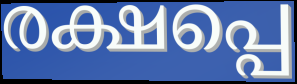
രക്ഷപ്പെ